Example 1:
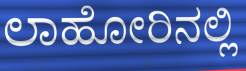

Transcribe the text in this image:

ಲಾಹೋರಿನಲ್ಲಿ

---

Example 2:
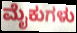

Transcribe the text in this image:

ಮೈಕುಗಳು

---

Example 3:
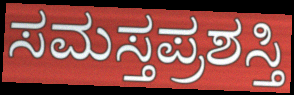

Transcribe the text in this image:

ಸಮಸ್ತಪ್ರಶಸ್ತಿ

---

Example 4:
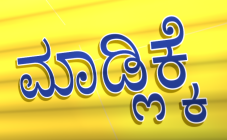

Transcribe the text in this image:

ಮಾಡ್ಲಿಕ್ಕೆ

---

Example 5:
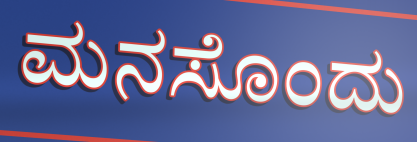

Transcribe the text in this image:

ಮನಸೊಂದು